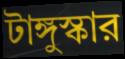
টাঙ্গুস্কার